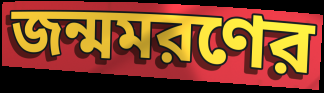
জন্মমরণের